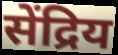
सेंद्रिय